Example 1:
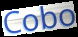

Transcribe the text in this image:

Cobo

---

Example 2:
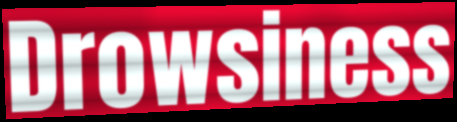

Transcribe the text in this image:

Drowsiness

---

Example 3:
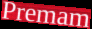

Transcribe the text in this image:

Premam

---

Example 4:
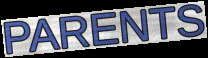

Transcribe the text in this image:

PARENTS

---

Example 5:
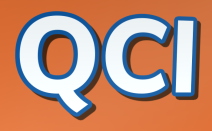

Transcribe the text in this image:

QCI